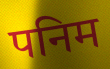
पनिम